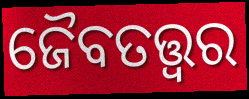
ଜୈବତତ୍ତ୍ୱର